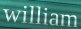
william